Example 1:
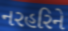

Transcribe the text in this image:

નરહરિને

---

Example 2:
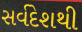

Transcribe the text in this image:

સર્વદેશથી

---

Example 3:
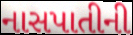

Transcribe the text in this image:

નાસપાતીની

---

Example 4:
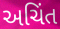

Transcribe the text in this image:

અચિંત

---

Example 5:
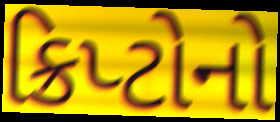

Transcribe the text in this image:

ક્રિપ્ટોનો